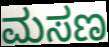
ಮಸಣ